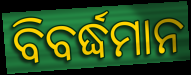
ବିବର୍ଦ୍ଧମାନ